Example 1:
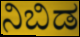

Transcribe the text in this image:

ನಿಬಿಡ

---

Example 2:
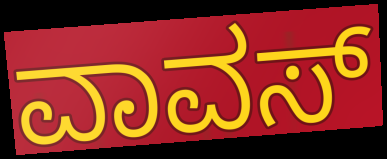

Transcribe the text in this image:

ವಾವಸ್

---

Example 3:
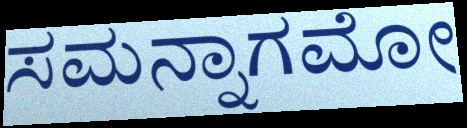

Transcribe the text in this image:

ಸಮನ್ನಾಗಮೋ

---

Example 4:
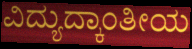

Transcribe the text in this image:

ವಿದ್ಯುದ್ಕಾಂತೀಯ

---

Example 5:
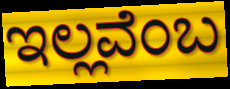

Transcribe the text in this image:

ಇಲ್ಲವೆಂಬ